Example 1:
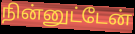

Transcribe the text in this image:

நின்னுட்டேன்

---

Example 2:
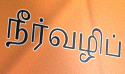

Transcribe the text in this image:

நீர்வழிப்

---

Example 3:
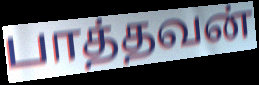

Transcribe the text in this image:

பாத்தவன்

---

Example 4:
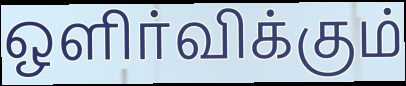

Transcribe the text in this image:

ஒளிர்விக்கும்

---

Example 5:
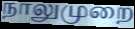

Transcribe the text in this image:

நாலுமுறை